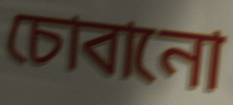
চোবানো